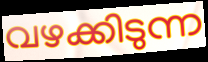
വഴക്കിടുന്ന